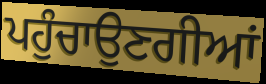
ਪਹੁੰਚਾਉਣਗੀਆਂ